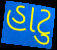
હાટુ